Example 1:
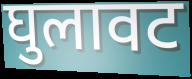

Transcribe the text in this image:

घुलावट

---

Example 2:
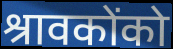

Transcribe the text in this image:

श्रावकोंको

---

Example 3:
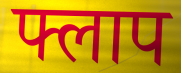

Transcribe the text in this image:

फ्लाप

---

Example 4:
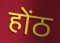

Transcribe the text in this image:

होंठ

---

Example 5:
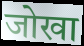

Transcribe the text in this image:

जोखा